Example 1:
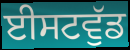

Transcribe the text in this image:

ਈਸਟਵੁੱਡ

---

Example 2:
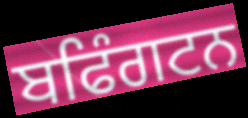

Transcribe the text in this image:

ਬਫਿੰਗਟਨ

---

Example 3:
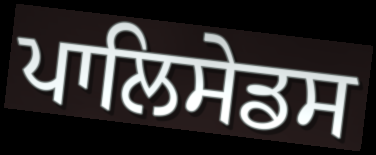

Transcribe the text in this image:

ਪਾਲਿਸੇਡਸ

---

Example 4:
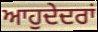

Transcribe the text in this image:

ਆਹੁਦੇਦਰਾਂ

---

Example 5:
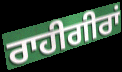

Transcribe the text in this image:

ਰਾਹੀਗੀਰਾਂ